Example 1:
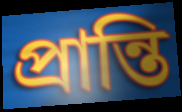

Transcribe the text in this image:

প্রান্তি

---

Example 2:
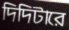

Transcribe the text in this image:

দিদিটারে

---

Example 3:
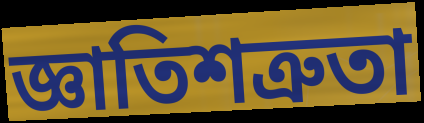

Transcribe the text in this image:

জ্ঞাতিশত্রুতা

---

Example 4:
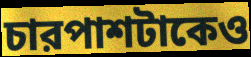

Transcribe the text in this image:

চারপাশটাকেও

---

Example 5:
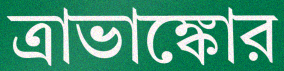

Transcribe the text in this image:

ত্রাভাঙ্কোর